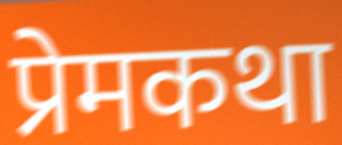
प्रेमकथा